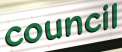
council